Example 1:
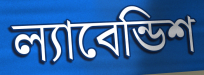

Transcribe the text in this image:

ল্যাবেন্ডিশ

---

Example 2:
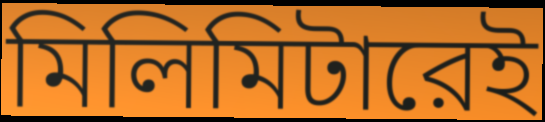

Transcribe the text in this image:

মিলিমিটারেই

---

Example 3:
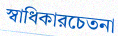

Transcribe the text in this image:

স্বাধিকারচেতনা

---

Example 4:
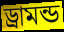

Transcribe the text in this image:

ড্রামন্ড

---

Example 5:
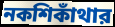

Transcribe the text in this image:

নকশিকাঁথার